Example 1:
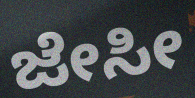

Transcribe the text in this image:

ಜೇಸೀ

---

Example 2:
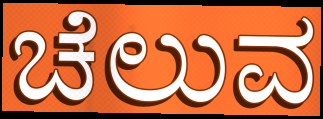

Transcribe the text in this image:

ಚೆಲುವ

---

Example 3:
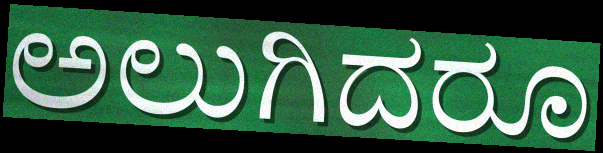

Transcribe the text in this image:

ಅಲುಗಿದರೂ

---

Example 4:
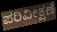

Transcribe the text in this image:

ಪರಿವೀಕ್ಷಣೆ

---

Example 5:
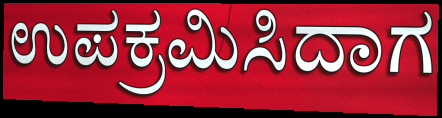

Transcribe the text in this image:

ಉಪಕ್ರಮಿಸಿದಾಗ